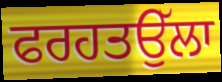
ਫਰਹਤਉੱਲਾ